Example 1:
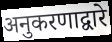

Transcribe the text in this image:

अनुकरणाद्वारे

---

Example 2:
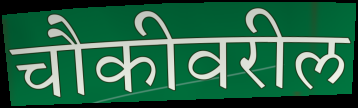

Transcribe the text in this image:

चौकीवरील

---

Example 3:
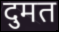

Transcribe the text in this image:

दुमत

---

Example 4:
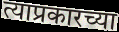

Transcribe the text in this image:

त्याप्रकारच्या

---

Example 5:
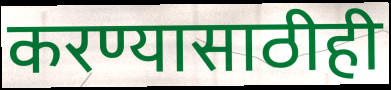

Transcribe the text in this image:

करण्यासाठीही